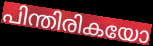
പിന്തിരികയോ